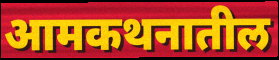
आमकथनातील